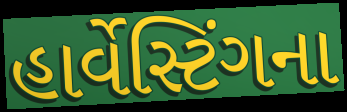
હાર્વેસ્ટિંગના